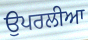
ਉਪਰਲੀਆ